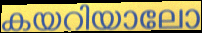
കയറിയാലോ